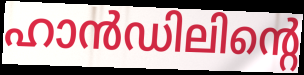
ഹാൻഡിലിന്റെ